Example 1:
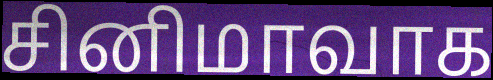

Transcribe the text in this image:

சினிமாவாக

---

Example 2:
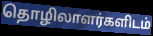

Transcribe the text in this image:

தொழிலாளர்களிடம்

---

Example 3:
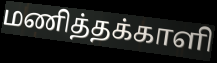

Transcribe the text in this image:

மணித்தக்காளி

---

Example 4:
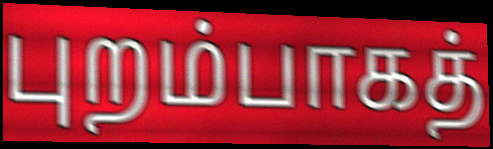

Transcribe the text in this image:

புறம்பாகத்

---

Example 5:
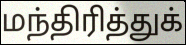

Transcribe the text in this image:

மந்திரித்துக்